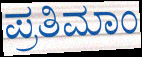
ಪ್ರತಿಮಾಂ